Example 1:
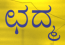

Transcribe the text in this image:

ಛದ್ಮ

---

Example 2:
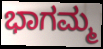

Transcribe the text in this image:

ಭಾಗಮ್ಮ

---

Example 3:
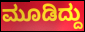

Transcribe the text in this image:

ಮೂಡಿದ್ದು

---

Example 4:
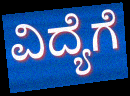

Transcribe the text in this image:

ವಿದ್ಯೆಗೆ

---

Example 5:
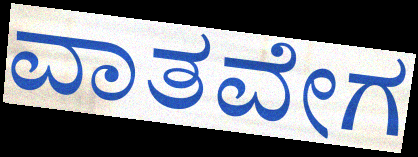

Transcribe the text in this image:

ವಾತವೇಗ